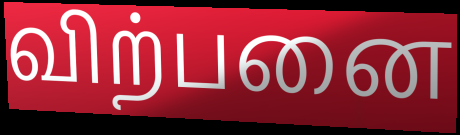
விற்பனை